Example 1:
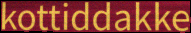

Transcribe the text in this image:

kottiddakke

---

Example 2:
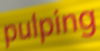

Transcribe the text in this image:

pulping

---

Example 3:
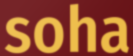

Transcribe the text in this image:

soha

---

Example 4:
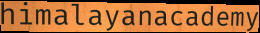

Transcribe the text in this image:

himalayanacademy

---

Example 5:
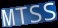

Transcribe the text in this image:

MTSS